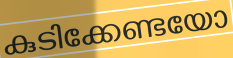
കുടിക്കേണ്ടയോ